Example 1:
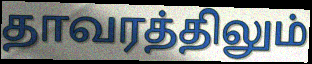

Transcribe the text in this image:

தாவரத்திலும்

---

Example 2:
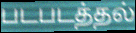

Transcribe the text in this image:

படபடத்தல்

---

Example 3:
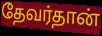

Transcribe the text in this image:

தேவர்தான்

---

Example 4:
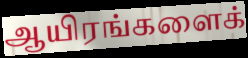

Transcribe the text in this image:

ஆயிரங்களைக்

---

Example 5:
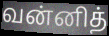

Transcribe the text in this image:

வன்னித்